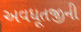
અવધૂતજીની